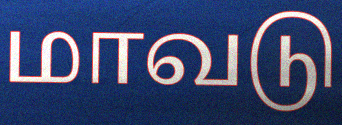
மாவடு